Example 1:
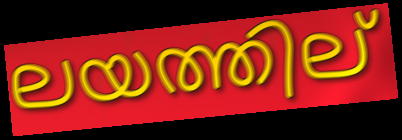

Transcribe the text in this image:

ലയത്തില്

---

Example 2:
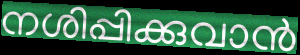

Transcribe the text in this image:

നശിപ്പിക്കുവാൻ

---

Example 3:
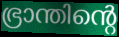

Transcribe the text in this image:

ഭ്രാന്തിന്റെ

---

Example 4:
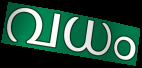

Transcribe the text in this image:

വധം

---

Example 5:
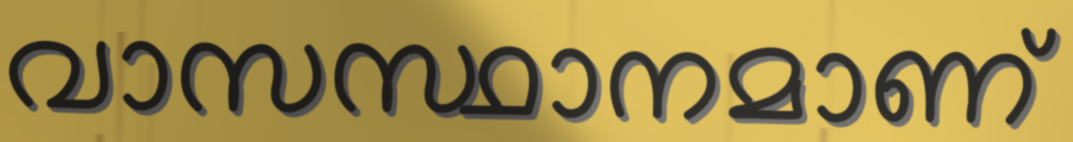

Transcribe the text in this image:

വാസസ്ഥാനമാണ്